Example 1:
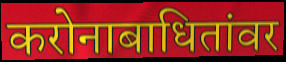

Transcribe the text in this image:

करोनाबाधितांवर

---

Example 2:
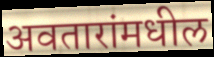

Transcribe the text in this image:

अवतारांमधील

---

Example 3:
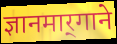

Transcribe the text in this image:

ज्ञानमार्गाने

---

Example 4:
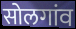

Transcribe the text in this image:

सोलगांव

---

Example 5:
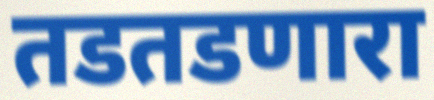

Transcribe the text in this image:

तडतडणारा